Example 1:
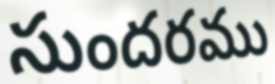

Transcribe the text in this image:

సుందరము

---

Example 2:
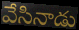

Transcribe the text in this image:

వేసినాడు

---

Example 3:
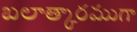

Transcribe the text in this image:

బలాత్కారముగా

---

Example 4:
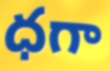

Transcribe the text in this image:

ధగా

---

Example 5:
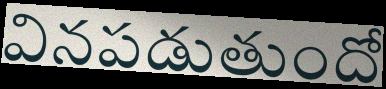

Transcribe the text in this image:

వినపడుతుందో